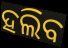
ହଲିବ